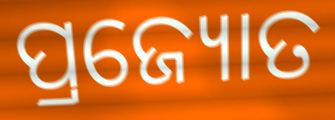
ପ୍ରଜ୍ୟୋତ